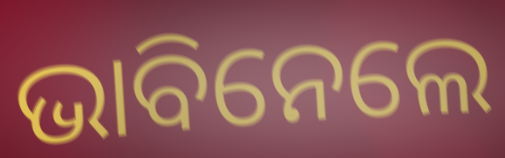
ଭାବିନେଲେ